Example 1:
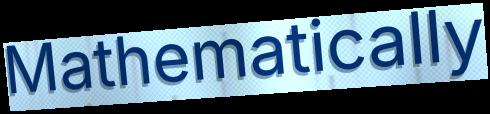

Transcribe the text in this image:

Mathematically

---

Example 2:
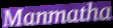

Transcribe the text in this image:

Manmatha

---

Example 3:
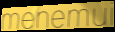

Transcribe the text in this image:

menemui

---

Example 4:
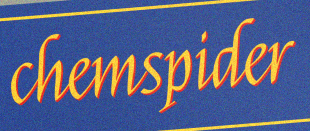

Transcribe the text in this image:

chemspider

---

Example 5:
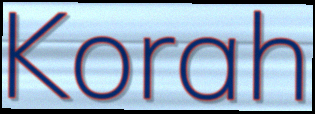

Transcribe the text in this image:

Korah